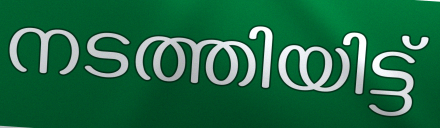
നടത്തിയിട്ട്